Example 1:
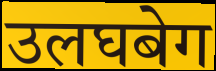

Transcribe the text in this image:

उलघबेग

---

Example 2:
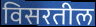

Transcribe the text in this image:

विसरतील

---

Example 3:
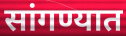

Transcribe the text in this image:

सांगण्यात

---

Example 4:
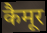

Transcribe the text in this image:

कैमूर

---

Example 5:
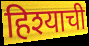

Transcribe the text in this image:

हिश्याची